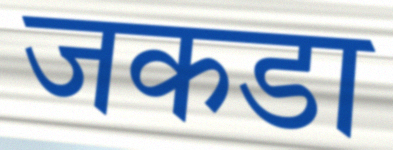
जकडा